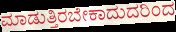
ಮಾಡುತ್ತಿರಬೇಕಾದುದರಿಂದ